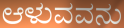
ಆಳುವವನು